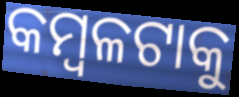
କମ୍ବଳଟାକୁ